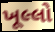
ખૂલ્લો